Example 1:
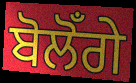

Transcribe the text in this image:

ਬੋਲੋਁਗੇ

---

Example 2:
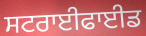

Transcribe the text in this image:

ਸਟਰਾਈਫਾਈਡ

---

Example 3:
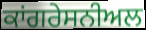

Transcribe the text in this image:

ਕਾਂਗਰੇਸਨੀਅਲ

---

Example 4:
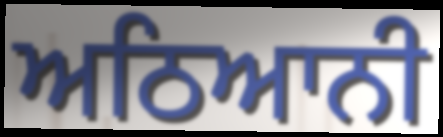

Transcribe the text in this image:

ਅਠਿਆਨੀ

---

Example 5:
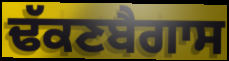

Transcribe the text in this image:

ਢੱਕਣਬੈਗਾਸ